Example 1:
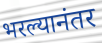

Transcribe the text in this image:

भरल्यानंतर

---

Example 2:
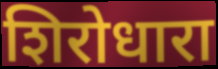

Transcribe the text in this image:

शिरोधारा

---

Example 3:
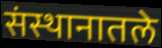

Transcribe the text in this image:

संस्थानातले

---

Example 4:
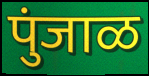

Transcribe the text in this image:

पुंजाळ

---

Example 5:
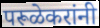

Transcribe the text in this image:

परूळेकरांनी